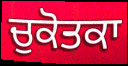
ਚੁਕੋਤਕਾ